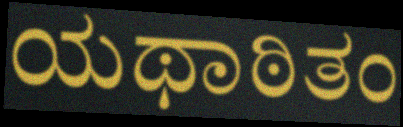
ಯಥಾಠಿತಂ